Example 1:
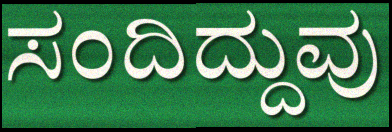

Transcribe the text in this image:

ಸಂದಿದ್ದುವು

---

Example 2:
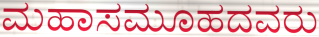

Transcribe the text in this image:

ಮಹಾಸಮೂಹದವರು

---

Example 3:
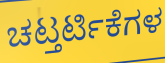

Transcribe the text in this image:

ಚಟ್ತರ್ಟಿಕೆಗಳ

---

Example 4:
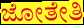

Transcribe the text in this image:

ಜೋತೇತಿ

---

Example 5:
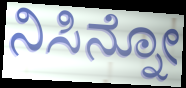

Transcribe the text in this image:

ನಿಸಿನ್ನೋ